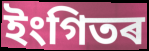
ইংগিতৰ